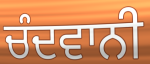
ਚੰਦਵਾਨੀ